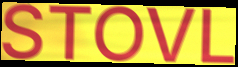
STOVL